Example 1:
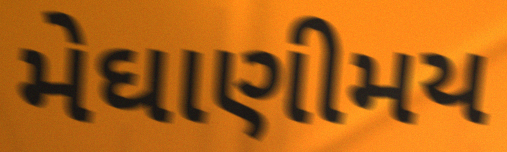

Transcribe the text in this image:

મેઘાણીમય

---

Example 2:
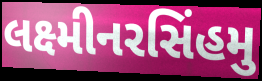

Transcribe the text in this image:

લક્ષ્મીનરસિંહમુ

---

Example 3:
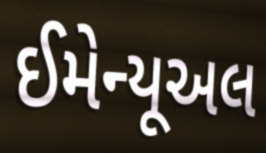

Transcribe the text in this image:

ઈમેન્યૂઅલ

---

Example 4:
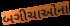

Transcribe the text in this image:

બગીચાઓના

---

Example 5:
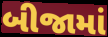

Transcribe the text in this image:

બીજામાં